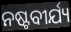
ନଷ୍ଟବୀର୍ଯ୍ୟ